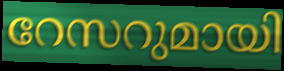
റേസറുമായി